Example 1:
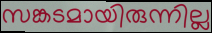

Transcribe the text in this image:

സങ്കടമായിരുന്നില്ല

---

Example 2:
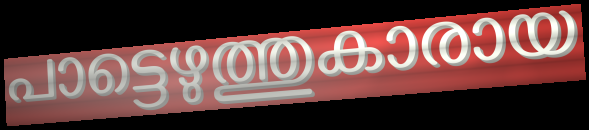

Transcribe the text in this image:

പാട്ടെഴുത്തുകാരായ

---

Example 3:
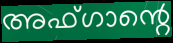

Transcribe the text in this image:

അഫ്ഗാന്റെ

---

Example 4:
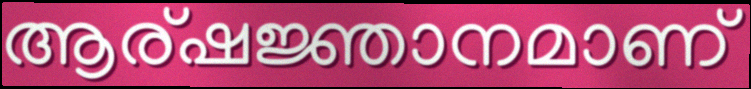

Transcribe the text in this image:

ആര്ഷജ്ഞാനമാണ്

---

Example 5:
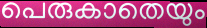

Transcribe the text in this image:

പെരുകാതെയും